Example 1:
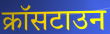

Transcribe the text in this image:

क्रॉसटाउन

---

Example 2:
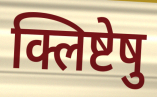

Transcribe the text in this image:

क्लिष्टेषु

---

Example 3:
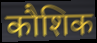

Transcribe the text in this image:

कौशिक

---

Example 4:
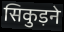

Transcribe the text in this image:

सिकुड़ने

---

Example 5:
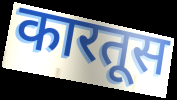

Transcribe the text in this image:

कारतूस